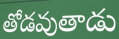
తోడవుతాడు